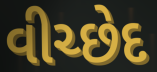
વીચ્છેદ